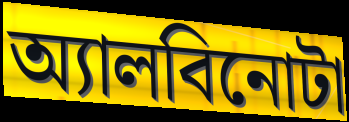
অ্যালবিনোটা